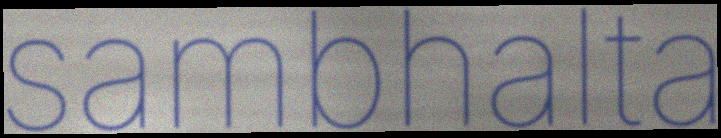
sambhalta